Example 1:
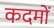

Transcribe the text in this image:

कदमों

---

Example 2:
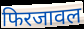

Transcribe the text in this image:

फिरजावल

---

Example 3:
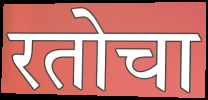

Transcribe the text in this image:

रतोचा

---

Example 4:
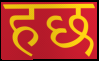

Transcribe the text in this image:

हछ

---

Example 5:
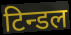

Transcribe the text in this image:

टिन्डल